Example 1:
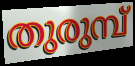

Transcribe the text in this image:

തുരുമ്പ്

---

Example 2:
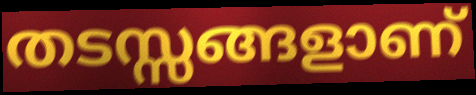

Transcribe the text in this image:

തടസ്സങ്ങളാണ്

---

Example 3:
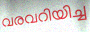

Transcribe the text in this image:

വരവറിയിച്ച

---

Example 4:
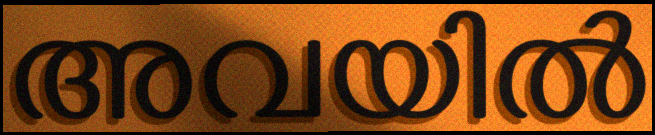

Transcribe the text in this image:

അവയിൽ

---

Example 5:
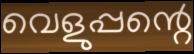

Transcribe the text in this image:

വെളുപ്പന്റെ